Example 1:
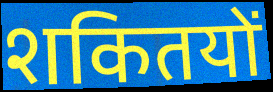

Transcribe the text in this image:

शकितयों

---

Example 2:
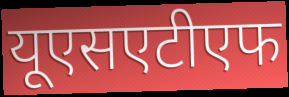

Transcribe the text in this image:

यूएसएटीएफ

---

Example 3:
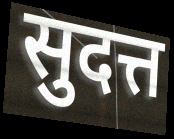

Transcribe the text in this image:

सुदत्त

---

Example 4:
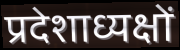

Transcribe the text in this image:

प्रदेशाध्यक्षों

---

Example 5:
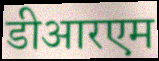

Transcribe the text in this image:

डीआरएम